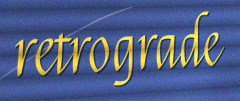
retrograde